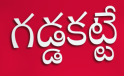
గడ్డకట్టే